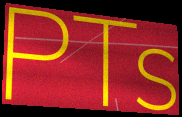
PTs